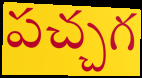
పచ్చగ